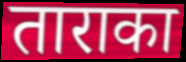
ताराका